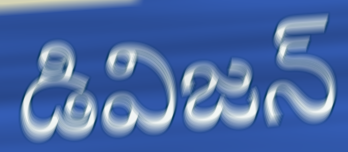
డివిజన్